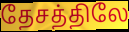
தேசத்திலே